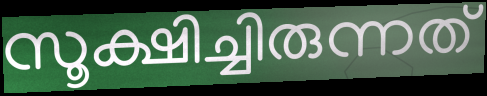
സൂക്ഷിച്ചിരുന്നത്